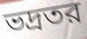
ভদ্রতর